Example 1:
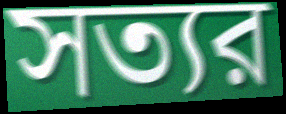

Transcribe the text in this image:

সত্যর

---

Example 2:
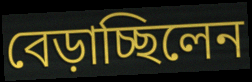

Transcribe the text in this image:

বেড়াচ্ছিলেন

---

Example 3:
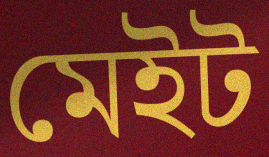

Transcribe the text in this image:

মেইট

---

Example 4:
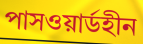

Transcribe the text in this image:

পাসওয়ার্ডহীন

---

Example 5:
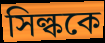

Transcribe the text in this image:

সিল্ককে